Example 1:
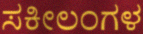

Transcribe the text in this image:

ಸಕೀಲಂಗಳ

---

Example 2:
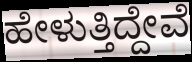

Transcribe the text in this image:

ಹೇಳುತ್ತಿದ್ದೇವೆ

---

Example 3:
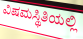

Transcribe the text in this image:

ವಿಷಮಸ್ಥಿತಿಯಲ್ಲಿ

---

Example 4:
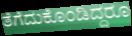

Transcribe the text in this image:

ತೆಗೆದುಕೊಂಡಿದ್ದರೂ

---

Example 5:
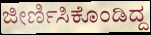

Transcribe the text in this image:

ಜೀರ್ಣಿಸಿಕೊಂಡಿದ್ದ